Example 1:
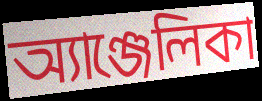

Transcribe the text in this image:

অ্যাঞ্জেলিকা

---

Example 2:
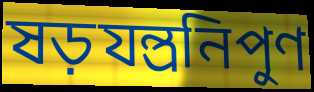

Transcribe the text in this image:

ষড়যন্ত্রনিপুণ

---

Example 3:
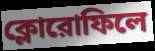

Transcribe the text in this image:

ক্লোরোফিলে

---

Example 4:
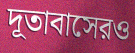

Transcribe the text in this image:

দূতাবাসেরও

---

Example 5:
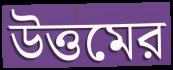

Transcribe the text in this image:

উত্তমের